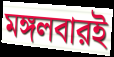
মঙ্গলবারই